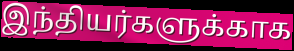
இந்தியர்களுக்காக